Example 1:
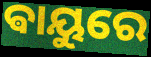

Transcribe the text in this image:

ଵାୟୁରେ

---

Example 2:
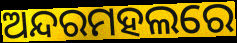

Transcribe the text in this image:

ଅନ୍ଦରମହଲରେ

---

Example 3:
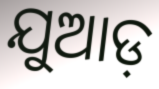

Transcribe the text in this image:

ଯୁଆଡ଼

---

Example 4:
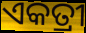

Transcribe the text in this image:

ଏକତ୍ରୀ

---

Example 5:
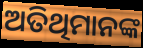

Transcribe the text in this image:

ଅତିଥିମାନଙ୍କ